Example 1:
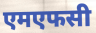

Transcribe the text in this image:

एमएफसी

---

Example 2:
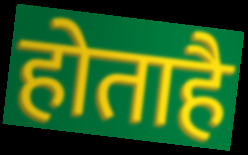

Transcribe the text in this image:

होताहै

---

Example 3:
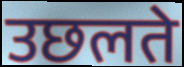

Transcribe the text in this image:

उछलते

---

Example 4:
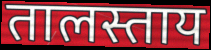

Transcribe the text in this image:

तालस्ताय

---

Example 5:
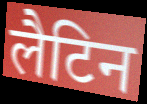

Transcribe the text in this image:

लैटिन